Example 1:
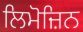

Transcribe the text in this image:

ਲਿਮੋਜ਼ਿਨ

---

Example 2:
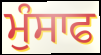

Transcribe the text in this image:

ਮੁੰਸਾਫ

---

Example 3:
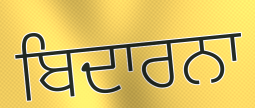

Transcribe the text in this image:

ਬਿਦਾਰਨਾ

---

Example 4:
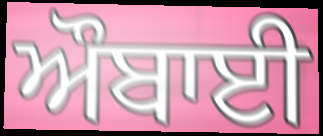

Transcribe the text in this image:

ਔਬਾਈ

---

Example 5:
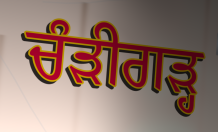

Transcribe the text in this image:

ਚੰੜੀਗੜ੍ਹ